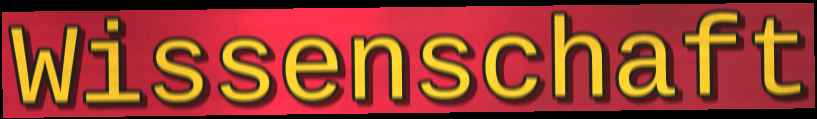
Wissenschaft